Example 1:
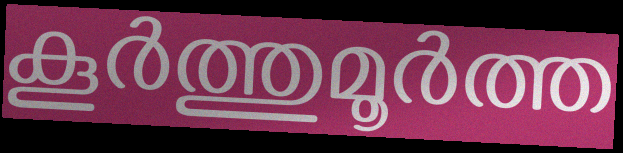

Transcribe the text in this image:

കൂർത്തുമൂർത്ത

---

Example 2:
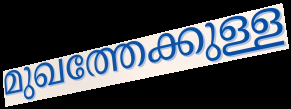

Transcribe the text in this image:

മുഖത്തേക്കുള്ള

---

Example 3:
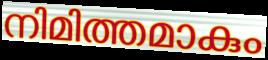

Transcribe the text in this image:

നിമിത്തമാകും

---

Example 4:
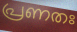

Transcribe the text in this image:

പ്രണതഃ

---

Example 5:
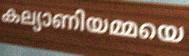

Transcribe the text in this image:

കല്യാണിയമ്മയെ